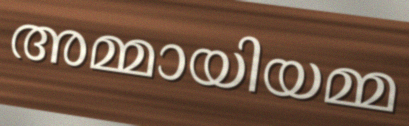
അമ്മായിയമ്മ